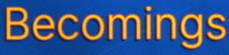
Becomings